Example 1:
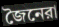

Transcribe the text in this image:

জৈনেরা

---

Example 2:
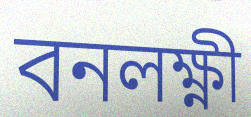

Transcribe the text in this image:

বনলক্ষ্ণী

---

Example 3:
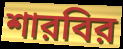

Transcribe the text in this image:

শারবির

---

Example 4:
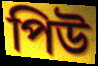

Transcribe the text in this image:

পিউ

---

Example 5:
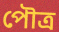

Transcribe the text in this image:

পৌত্র